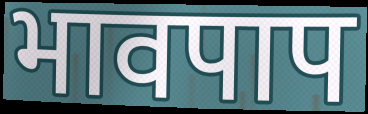
भावपाप